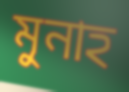
মুনাহ